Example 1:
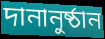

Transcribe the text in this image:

দানানুষ্ঠান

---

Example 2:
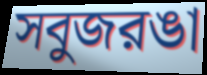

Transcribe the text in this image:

সবুজরঙা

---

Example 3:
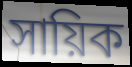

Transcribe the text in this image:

সায়িক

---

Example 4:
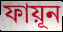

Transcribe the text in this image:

ফায়ূন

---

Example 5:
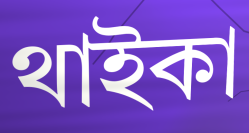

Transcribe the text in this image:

থাইকা